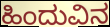
ಹಿಂದುವಿನ